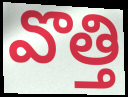
వొత్తి